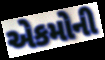
એકમોની